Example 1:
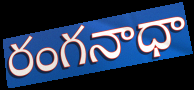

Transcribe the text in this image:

రంగనాధా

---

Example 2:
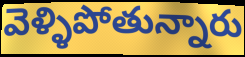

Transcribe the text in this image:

వెళ్ళిపోతున్నారు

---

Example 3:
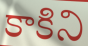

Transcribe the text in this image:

కాకిని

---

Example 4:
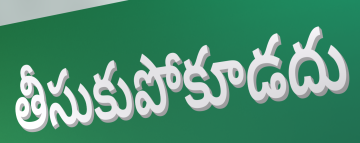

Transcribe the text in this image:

తీసుకుపోకూడదు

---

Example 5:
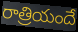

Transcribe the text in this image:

రాత్రియందే